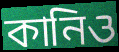
কানিও